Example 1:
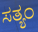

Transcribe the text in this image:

ಸತ್ಯಂ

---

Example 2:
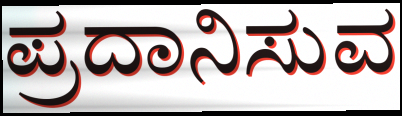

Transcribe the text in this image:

ಪ್ರದಾನಿಸುವ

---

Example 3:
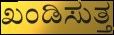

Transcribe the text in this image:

ಖಂಡಿಸುತ್ತ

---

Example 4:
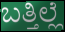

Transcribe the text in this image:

ಬತ್ತಿಲ್ಲೆ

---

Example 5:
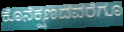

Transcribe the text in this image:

ಕೊನೆಕ್ಷಣದವರೆಗೂ